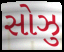
સોઝુ